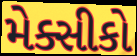
મેક્સીકો